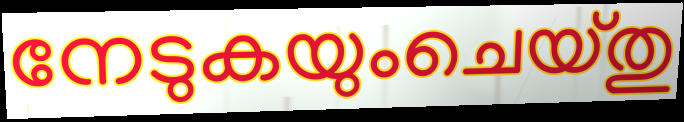
നേടുകയുംചെയ്തു